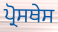
ਪ੍ਰੋਸਥੇਸ